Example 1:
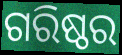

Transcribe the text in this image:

ଗରିଷ୍ଠର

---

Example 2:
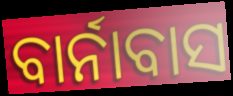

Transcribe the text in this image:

ବାର୍ନାବାସ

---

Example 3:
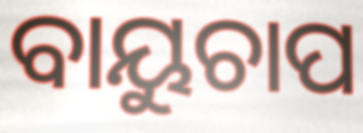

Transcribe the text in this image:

ବାୟୁଚାପ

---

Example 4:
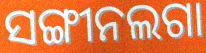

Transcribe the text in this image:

ସଙ୍ଗୀନଲଗା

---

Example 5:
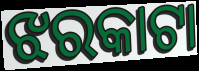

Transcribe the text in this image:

ଝରକାଟା